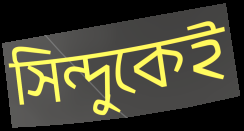
সিন্দুকেই